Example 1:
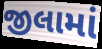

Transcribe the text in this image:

જીલામાં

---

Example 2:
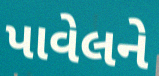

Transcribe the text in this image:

પાવેલને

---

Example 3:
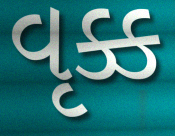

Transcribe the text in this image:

વૃક્ક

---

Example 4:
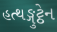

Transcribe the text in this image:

હત્થઙ્ગુટ્ઠેન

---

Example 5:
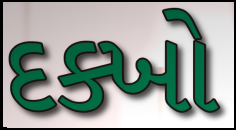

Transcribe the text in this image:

દક્ખો